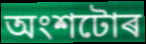
অংশটোৰ